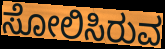
ಸೋಲಿಸಿರುವ